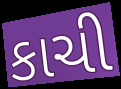
કાચી